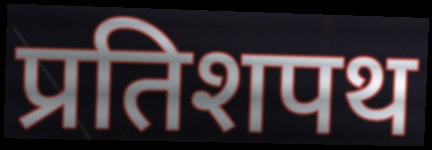
प्रतिशपथ